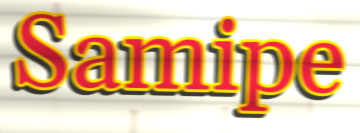
Samipe